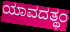
ಯಾವದತ್ಥಂ